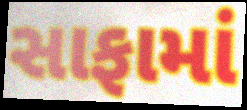
સાફામાં